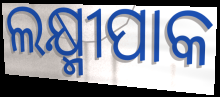
ଲକ୍ଷ୍ମୀପାକ